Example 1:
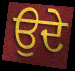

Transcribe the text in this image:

ਉਦੇ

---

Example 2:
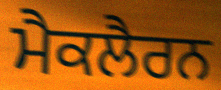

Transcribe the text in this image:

ਮੈਕਲੈਰਨ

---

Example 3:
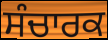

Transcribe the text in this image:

ਸੰਚਾਰਕ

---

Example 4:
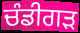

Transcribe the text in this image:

ਚੰਡੀਗੜ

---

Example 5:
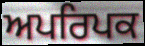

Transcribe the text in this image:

ਅਪਰਿਪਕ